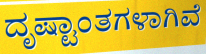
ದೃಷ್ಟಾಂತಗಳಾಗಿವೆ